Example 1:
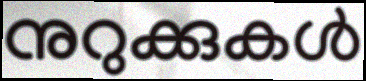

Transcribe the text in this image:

നുറുക്കുകൾ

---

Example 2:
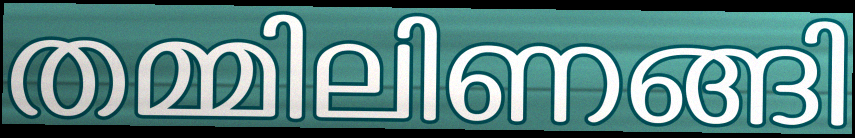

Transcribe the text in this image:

തമ്മിലിണങ്ങി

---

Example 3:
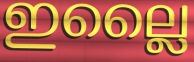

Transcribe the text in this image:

ഇല്ലൈ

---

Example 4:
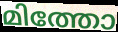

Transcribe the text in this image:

മിത്തോ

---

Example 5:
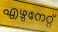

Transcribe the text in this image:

എഴുനേറ്റ്